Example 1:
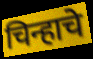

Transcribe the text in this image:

चिन्हाचे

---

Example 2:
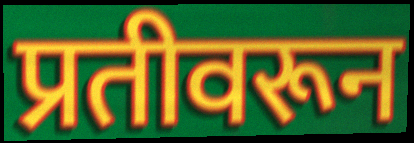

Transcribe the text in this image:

प्रतीवरून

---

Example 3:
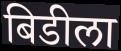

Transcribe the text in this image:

बिडीला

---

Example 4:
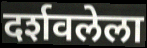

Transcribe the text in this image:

दर्शवलेला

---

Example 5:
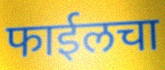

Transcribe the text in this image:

फाईलचा